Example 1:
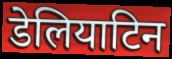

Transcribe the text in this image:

डेलियाटिन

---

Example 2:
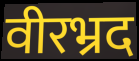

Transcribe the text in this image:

वीरभ्रद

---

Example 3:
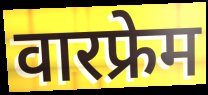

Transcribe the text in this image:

वारफ्रेम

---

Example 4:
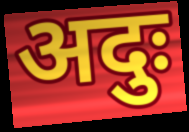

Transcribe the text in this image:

अदुः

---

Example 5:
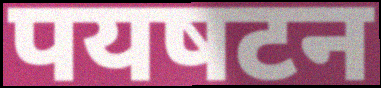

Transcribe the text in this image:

पयषटन